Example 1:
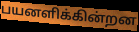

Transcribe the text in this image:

பயனளிக்கின்றன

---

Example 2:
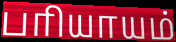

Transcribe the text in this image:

பரியாயம்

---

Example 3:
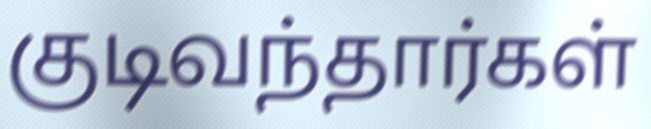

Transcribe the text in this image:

குடிவந்தார்கள்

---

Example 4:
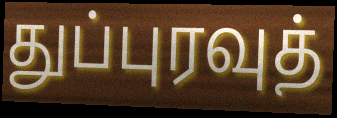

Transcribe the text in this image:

துப்புரவுத்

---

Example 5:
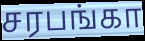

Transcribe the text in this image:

சரபங்கா